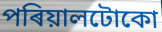
পৰিয়ালটোকো